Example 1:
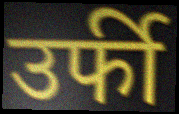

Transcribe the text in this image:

उर्फी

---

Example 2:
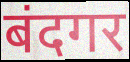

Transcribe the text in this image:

बंदगर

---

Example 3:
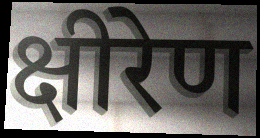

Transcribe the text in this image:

क्षीरेण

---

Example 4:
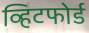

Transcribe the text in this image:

व्हिटफोर्ड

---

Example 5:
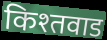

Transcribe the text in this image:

किश्तवाड